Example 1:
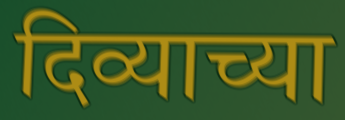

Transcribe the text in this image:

दिव्याच्या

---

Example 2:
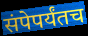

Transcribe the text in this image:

संपेपर्यंतच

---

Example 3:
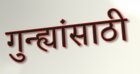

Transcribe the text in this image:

गुन्ह्यांसाठी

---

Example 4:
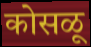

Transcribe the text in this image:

कोसळू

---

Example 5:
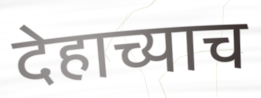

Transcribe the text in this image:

देहाच्याच